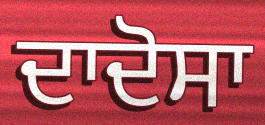
ਦਾਦੋਸਾ